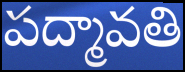
పద్మావతి